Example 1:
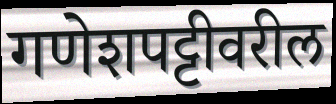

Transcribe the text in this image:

गणेशपट्टीवरील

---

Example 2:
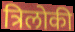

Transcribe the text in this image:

त्रिलोकी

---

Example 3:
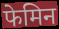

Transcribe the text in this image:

फेमिन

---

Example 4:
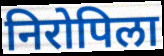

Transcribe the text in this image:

निरोपिला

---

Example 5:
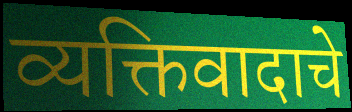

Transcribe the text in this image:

व्यक्तिवादाचे